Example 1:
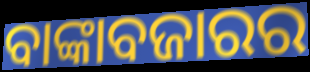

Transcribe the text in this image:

ବାଙ୍କାବଜାରର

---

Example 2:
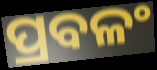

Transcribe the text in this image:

ପ୍ରବଳଂ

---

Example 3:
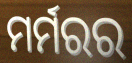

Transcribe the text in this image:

ମର୍ମରର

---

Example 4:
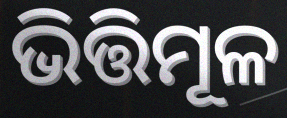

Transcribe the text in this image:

ଭିତ୍ତିମୂଳ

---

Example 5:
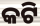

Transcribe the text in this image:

କଟି